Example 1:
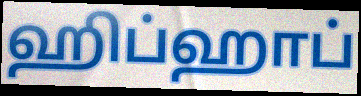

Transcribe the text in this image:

ஹிப்ஹாப்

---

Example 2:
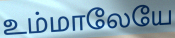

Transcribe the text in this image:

உம்மாலேயே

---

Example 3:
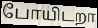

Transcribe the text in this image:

போயிடறா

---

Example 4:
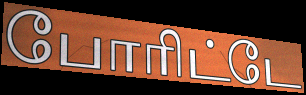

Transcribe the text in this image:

போரிட்டே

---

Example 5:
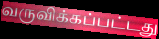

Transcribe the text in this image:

வருவிக்கப்பட்டது